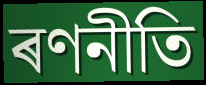
ৰণনীতি